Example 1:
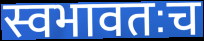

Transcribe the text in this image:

स्वभावतःच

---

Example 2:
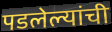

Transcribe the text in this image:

पडलेल्यांची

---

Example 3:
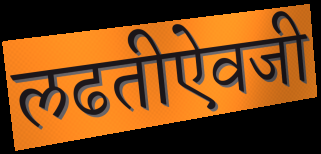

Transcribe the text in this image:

लढतीऐवजी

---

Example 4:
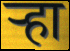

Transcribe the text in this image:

ऱ्हा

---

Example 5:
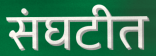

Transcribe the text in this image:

संघटीत